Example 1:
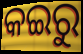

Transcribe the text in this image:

କଇରୁ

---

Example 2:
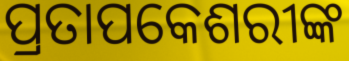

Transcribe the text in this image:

ପ୍ରତାପକେଶରୀଙ୍କ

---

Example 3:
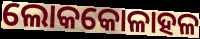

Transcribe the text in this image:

ଲୋକକୋଳାହଳ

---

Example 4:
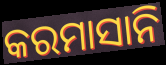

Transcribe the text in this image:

କରମାସାନି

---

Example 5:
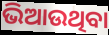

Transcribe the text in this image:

ଭିଆଉଥିବା